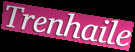
Trenhaile